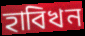
হাবিখন